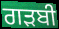
ਗੜਬੀ